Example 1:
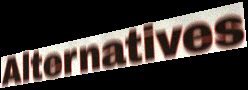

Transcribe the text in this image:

Alternatives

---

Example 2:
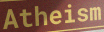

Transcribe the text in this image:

Atheism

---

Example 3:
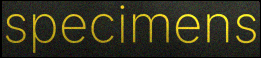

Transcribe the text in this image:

specimens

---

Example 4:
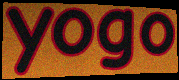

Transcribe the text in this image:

yogo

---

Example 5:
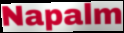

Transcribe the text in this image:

Napalm